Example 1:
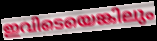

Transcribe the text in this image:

ഇവിടെയെങ്കിലും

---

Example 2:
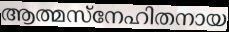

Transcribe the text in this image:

ആത്മസ്നേഹിതനായ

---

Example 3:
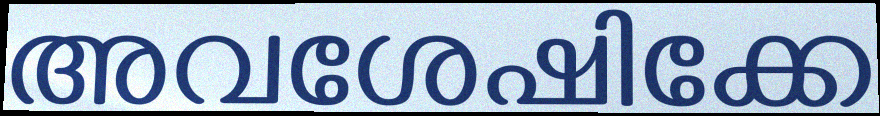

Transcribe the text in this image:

അവശേഷിക്കേ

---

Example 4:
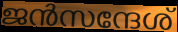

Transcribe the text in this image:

ജൻസന്ദേശ്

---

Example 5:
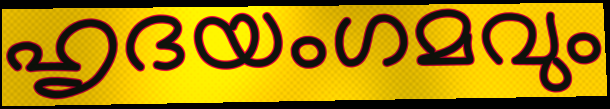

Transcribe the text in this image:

ഹൃദയംഗമവും